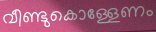
വീണ്ടുകൊള്ളേണം